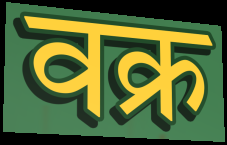
वक्र